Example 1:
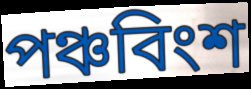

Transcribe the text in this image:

পঞ্চবিংশ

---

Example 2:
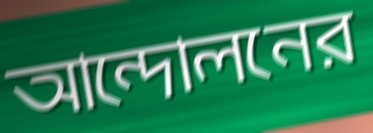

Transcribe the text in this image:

আন্দোলনের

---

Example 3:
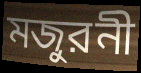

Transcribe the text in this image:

মজুরনী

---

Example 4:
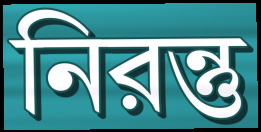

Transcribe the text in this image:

নিরন্তু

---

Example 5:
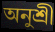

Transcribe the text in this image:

অনুশ্রী